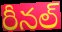
రీనల్